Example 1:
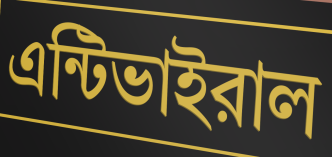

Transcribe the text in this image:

এন্টিভাইরাল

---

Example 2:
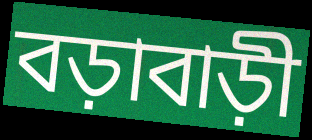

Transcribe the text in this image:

বড়াবাড়ী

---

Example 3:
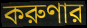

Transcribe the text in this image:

করুণার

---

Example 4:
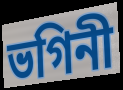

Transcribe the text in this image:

ভগিনী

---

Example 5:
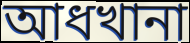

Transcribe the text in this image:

আধখানা